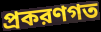
প্রকরণগত